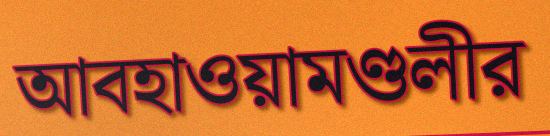
আবহাওয়ামণ্ডলীর